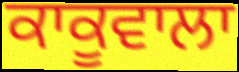
ਕਾਕੂਵਾਲਾ